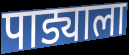
पाड्याला